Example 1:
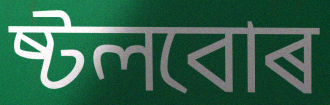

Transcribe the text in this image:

ষ্টলবোৰ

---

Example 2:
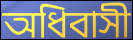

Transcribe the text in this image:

অধিবাসী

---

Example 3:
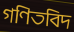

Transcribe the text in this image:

গণিতবিদ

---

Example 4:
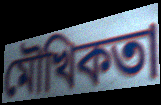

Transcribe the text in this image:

মৌখিকতা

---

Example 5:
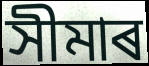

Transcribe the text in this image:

সীমাৰ